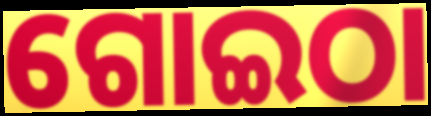
ଗୋଇଠା